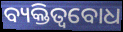
ବ୍ୟକ୍ତିତ୍ୱବୋଧ